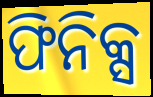
ଫିନିକ୍ସ